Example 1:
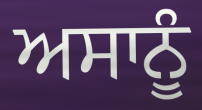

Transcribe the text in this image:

ਅਸਾਨੂੰ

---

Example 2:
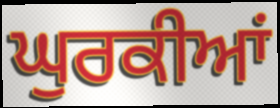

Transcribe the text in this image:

ਘੁਰਕੀਆਂ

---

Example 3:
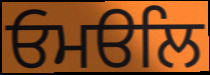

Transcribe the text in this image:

ਓਮੳਲਿ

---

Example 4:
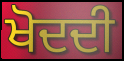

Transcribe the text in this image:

ਖੋਦਦੀ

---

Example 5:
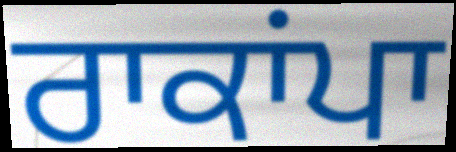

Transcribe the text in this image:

ਰਾਕਾਂਪਾ